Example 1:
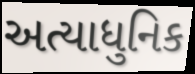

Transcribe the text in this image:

અત્યાધુનિક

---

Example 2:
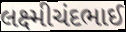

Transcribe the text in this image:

લક્ષ્મીચંદભાઈ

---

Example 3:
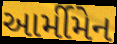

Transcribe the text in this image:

આર્મીમેન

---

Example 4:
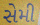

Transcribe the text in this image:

સેમી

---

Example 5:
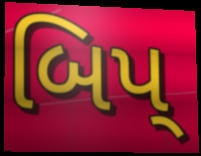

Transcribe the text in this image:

બિપ્